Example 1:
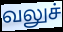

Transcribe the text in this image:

வலுச்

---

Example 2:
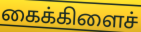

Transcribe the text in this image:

கைக்கிளைச்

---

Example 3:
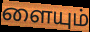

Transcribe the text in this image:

ளையும்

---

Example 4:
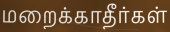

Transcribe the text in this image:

மறைக்காதீர்கள்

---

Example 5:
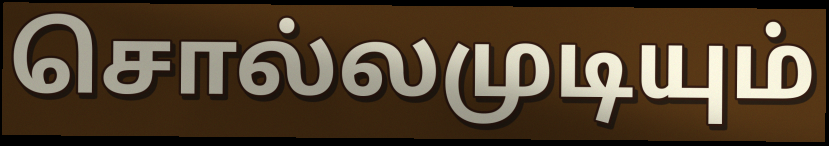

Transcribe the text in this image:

சொல்லமுடியும்